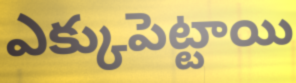
ఎక్కుపెట్టాయి